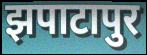
झपाटापुर